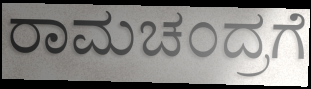
ರಾಮಚಂದ್ರಗೆ